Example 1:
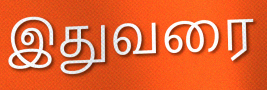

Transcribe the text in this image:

இதுவரை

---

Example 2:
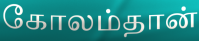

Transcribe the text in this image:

கோலம்தான்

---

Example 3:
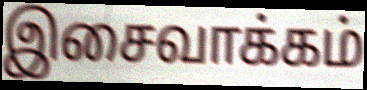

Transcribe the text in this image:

இசைவாக்கம்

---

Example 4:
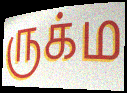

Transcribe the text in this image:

ருக்ம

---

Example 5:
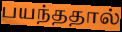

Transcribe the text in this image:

பயந்ததால்